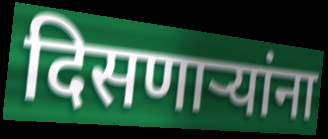
दिसणाऱ्यांना